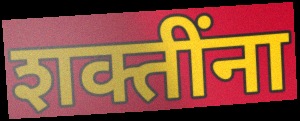
शक्तींना